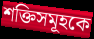
শক্তিসমূহকে